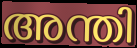
അന്തി